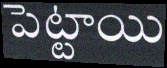
పెట్టాయి